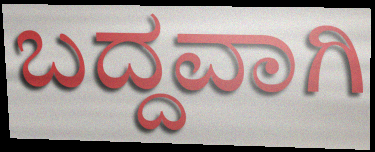
ಬದ್ದವಾಗಿ